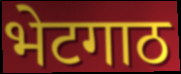
भेटगाठ